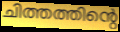
ചിത്തത്തിന്റെ